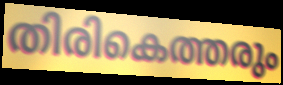
തിരികെത്തരും